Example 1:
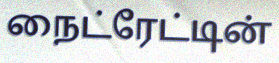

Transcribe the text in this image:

நைட்ரேட்டின்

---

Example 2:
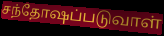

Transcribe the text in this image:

சந்தோஷப்படுவாள்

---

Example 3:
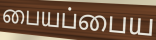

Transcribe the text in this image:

பையப்பைய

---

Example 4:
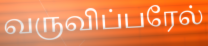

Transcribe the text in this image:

வருவிப்பரேல்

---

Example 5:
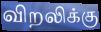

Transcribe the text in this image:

விறலிக்கு